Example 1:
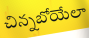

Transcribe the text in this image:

చిన్నబోయేలా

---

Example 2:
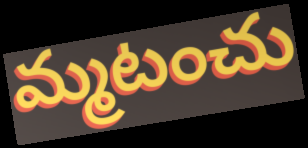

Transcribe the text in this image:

మ్మటంచు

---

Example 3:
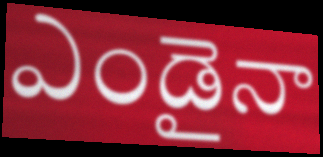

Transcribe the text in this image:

ఎండైనా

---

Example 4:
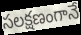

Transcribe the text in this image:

సలక్షణంగానే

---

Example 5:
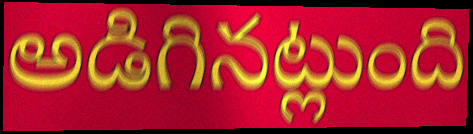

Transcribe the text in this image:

అడిగినట్లుంది